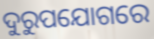
ଦୁରୁପଯୋଗରେ